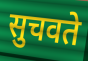
सुचवते